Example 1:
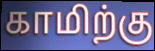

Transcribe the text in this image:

காமிற்கு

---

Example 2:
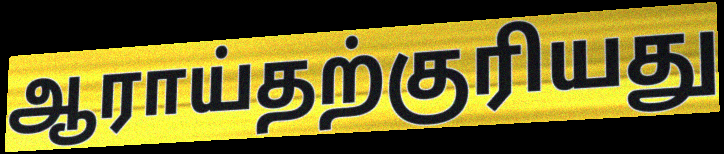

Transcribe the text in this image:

ஆராய்தற்குரியது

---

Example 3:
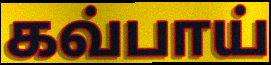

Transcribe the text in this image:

கவ்பாய்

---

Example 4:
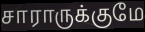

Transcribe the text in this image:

சாராருக்குமே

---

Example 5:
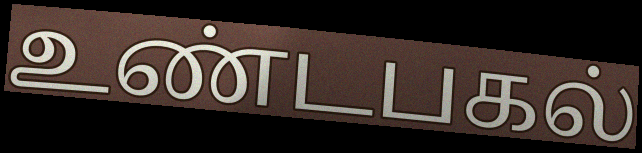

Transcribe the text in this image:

உண்டபகல்